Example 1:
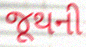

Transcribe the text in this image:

જૂથની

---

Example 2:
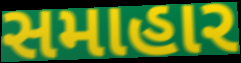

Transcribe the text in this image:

સમાહાર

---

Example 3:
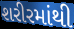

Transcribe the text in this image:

શરીરમાંથી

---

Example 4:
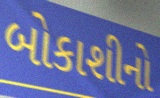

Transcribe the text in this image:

બોકાશીનો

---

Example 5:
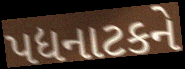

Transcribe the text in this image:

પદ્યનાટકને